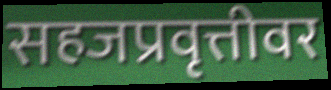
सहजप्रवृत्तीवर